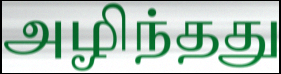
அழிந்தது